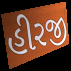
હીરજી